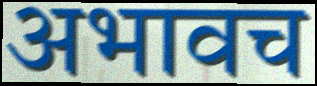
अभावच